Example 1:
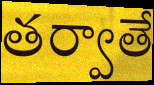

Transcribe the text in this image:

తర్వాతే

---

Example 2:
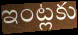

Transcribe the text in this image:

ఇంట్లకు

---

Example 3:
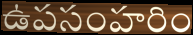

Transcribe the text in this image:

ఉపసంహరిం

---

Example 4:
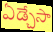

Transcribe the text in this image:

ఏడ్చేసా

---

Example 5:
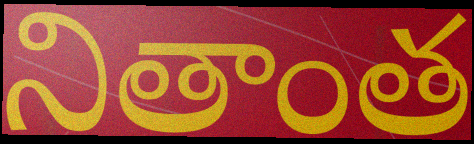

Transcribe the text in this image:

నితాంత